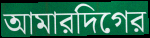
আমারদিগের